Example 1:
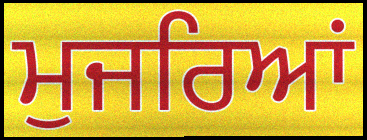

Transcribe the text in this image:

ਮੁਜਰਿਆਂ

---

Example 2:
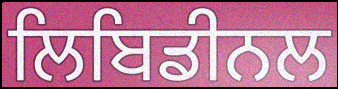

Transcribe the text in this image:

ਲਿਬਿਡੀਨਲ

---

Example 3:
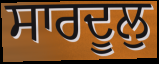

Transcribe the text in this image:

ਸਾਰਦੂਲੁ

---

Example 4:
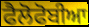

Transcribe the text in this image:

ਫੈਲੋਫੋਬੀਆ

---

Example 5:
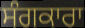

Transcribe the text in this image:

ਸੰਗਕਾਰਾ